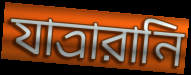
যাত্রারানি